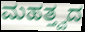
ಮಹತ್ತ್ವದ